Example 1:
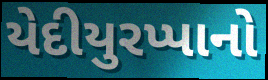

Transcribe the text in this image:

યેદીયુરપ્પાનો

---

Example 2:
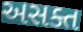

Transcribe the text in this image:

અસક્ત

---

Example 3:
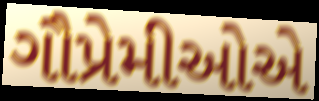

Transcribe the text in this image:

ગૌપ્રેમીઓએ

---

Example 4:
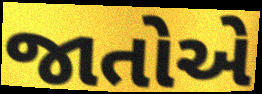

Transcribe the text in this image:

જાતોએ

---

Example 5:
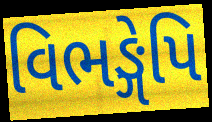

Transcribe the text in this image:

વિભઙ્ગેપિ